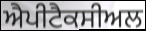
ਐਪੀਟੈਕਸੀਅਲ